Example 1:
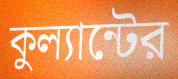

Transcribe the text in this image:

কুল্যান্টের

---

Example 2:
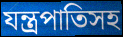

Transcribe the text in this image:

যন্ত্রপাতিসহ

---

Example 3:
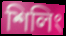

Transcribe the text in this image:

শিলিং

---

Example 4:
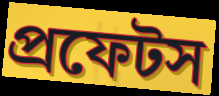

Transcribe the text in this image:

প্রফেটস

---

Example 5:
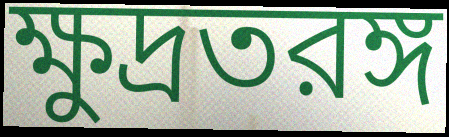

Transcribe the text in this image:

ক্ষুদ্রতরঙ্গ